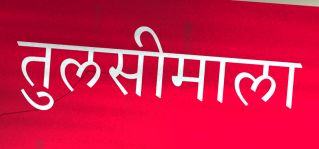
तुलसीमाला